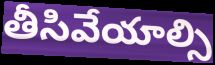
తీసివేయాల్సి